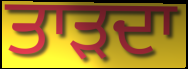
ਤਾੜਦਾ